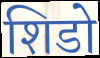
शिडो